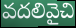
వదలివైచి